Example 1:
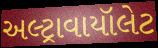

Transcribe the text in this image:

અલ્ટ્રાવાયૉલેટ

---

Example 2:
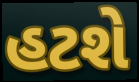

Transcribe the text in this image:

હટશે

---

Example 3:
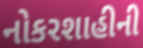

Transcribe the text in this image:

નોકરશાહીની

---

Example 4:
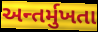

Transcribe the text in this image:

અન્તર્મુખતા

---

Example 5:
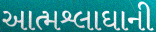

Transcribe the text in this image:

આત્મશ્લાઘાની